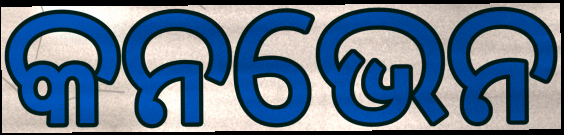
କନଭେନ